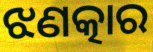
ଝଣତ୍କାର